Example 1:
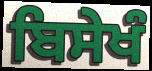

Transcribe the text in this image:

ਬਿਸੇਖੰ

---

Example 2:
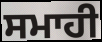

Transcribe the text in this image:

ਸਮਾਹੀ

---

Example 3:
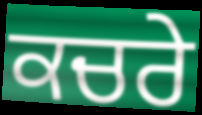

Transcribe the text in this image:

ਕਚਰੇ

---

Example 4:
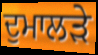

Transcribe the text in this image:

ਦੁਮਾਲੜੇ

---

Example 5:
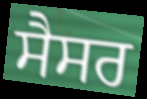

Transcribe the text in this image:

ਸੈਸਰ